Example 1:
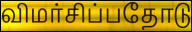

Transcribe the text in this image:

விமர்சிப்பதோடு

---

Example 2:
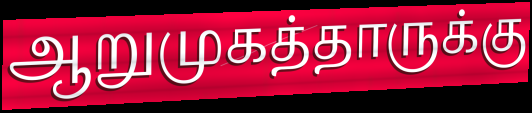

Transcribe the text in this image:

ஆறுமுகத்தாருக்கு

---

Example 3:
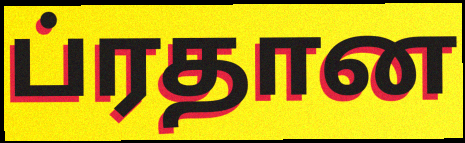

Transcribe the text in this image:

ப்ரதான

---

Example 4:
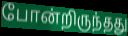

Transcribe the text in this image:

போன்றிருந்தது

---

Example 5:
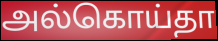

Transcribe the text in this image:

அல்கொய்தா